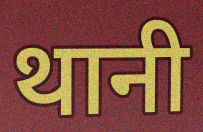
थानी